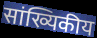
सांख्यिकीय